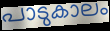
പാടുകാലം